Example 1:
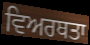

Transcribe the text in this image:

ਵਿਅਰਥਤਾ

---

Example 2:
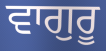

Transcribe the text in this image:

ਵਾਗੁਰੂ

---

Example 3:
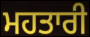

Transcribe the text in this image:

ਮਹਤਾਰੀ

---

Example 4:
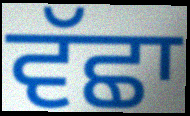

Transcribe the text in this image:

ਵੱਛਾ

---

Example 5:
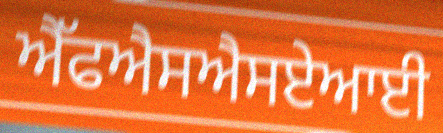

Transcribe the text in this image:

ਐੱਫਐਸਐਸਏਆਈ